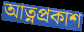
আত্নপ্রকাশ